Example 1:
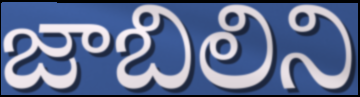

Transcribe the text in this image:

జాబిలిని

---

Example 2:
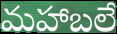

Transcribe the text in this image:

మహాబలే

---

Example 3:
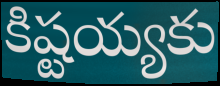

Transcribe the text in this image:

కిష్టయ్యకు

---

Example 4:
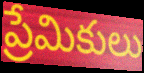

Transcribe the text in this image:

ప్రేమికులు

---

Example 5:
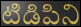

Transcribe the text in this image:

టిడిపిని